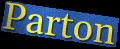
Parton